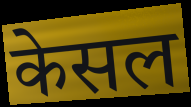
केसल